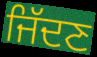
ਜਿੱਦਣ